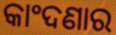
କାଂଦଣାର